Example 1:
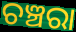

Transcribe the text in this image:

ଚଞ୍ଚରା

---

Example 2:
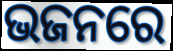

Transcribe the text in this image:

ଭଜନରେ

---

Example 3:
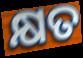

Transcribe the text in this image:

କ୍ଷତ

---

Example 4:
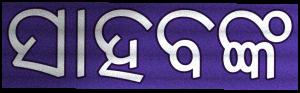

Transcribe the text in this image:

ସାହବଙ୍କ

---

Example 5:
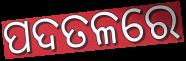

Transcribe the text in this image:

ପଦତଳରେ